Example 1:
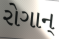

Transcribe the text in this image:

રોગાન્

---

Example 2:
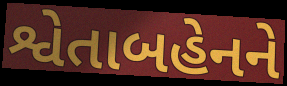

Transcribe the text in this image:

શ્વેતાબહેનને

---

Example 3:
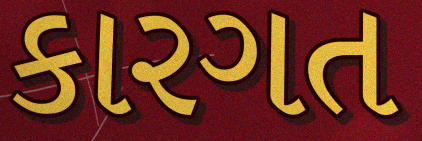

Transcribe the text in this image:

કારગત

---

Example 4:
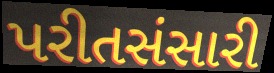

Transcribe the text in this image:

પરીતસંસારી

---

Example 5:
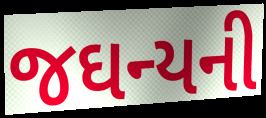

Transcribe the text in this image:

જઘન્યની